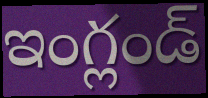
ఇంగ్లండ్